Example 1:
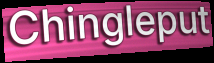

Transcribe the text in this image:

Chingleput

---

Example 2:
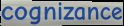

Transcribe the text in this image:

cognizance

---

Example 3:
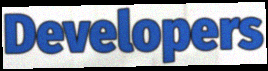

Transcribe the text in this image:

Developers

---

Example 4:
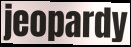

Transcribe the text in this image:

jeopardy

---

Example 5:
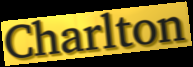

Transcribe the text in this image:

Charlton